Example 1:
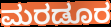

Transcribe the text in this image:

ಮರಡೂರ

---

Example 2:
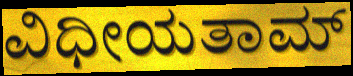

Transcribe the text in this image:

ವಿಧೀಯತಾಮ್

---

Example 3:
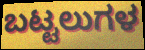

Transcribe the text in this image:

ಬಟ್ಟಲುಗಳ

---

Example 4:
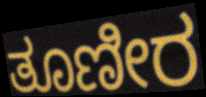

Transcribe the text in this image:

ತೂಣೀರ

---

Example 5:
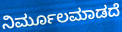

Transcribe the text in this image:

ನಿರ್ಮೂಲಮಾಡದೆ